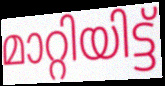
മാറ്റിയിട്ട്